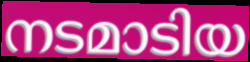
നടമാടിയ